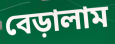
বেড়ালাম